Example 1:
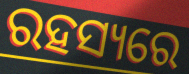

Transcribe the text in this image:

ରହସ୍ୟରେ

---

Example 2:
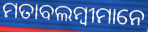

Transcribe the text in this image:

ମତାବଲମ୍ବୀମାନେ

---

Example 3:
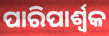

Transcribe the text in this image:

ପାରିପାର୍ଶ୍ବକ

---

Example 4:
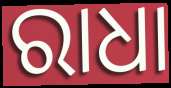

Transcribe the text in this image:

ରାଧା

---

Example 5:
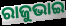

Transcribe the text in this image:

ରାଜୁଭାଇ